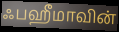
ஃபஹீமாவின்